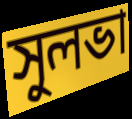
সুলভা